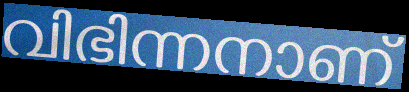
വിഭിന്നനാണ്